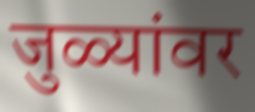
जुळ्यांवर